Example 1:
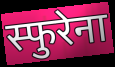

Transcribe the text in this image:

स्फुरेना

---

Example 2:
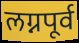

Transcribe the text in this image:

लग्नपूर्व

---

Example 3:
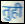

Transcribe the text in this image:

तुही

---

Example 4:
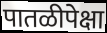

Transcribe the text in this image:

पातळीपेक्षा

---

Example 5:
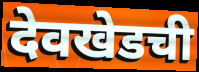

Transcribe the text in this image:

देवखेडची